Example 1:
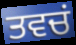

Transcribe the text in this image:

ਤਵਚਂ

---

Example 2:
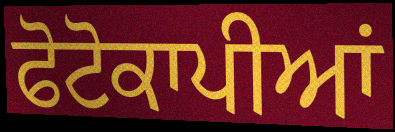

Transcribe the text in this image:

ਫੋਟੋਕਾਪੀਆਂ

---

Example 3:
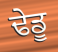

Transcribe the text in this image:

ਢੇਡੂ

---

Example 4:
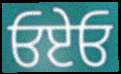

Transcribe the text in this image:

ਓਏਓ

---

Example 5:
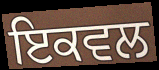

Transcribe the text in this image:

ਇਕਵਲ